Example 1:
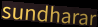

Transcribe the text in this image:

sundharar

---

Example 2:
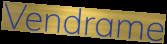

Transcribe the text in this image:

Vendrame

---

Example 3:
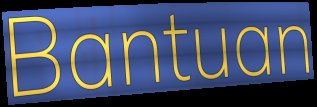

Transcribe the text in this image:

Bantuan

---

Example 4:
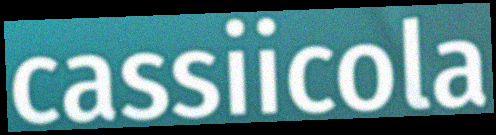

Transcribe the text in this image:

cassiicola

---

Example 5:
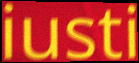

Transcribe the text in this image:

iusti